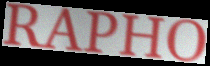
RAPHO